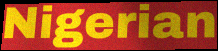
Nigerian